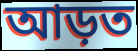
আড়ত